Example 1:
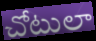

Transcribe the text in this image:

చోటులా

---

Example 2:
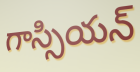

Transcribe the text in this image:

గాస్సియన్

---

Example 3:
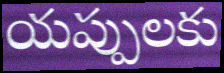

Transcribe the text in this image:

యప్పులకు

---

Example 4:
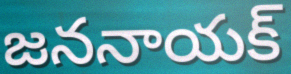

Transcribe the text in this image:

జననాయక్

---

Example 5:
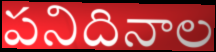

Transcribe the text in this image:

పనిదినాల